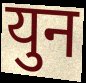
युन